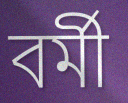
বৰ্মী